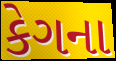
કેગના